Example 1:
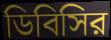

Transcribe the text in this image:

ডিবিসির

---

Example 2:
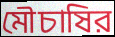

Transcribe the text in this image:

মৌচাষির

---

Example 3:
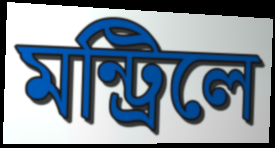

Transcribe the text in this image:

মন্ট্রিলে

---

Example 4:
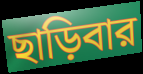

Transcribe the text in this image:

ছাড়িবার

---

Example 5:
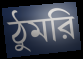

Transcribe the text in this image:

ঠুমরি